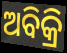
ଅବିକ୍ରି